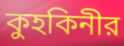
কুহকিনীর